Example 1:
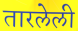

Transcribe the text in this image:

तारलेली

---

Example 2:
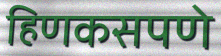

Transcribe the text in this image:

हिणकसपणे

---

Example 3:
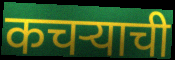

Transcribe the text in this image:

कचर्‍याची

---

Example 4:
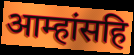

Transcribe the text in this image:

आम्हांसहि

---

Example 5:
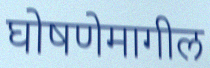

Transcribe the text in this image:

घोषणेमागील